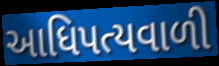
આધિપત્યવાળી